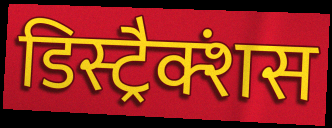
डिस्ट्रैक्शंस